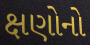
ક્ષણોનો